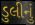
ડુલીનું